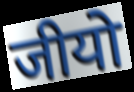
जीयो